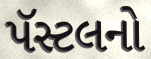
પૅસ્ટલનો